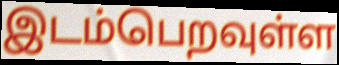
இடம்பெறவுள்ள